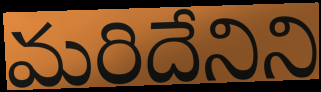
మరిదేనిని